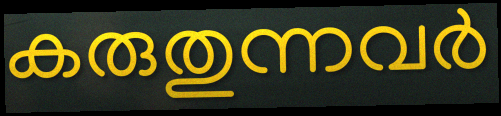
കരുതുന്നവർ